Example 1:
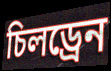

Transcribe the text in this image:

চিলড্ৰেন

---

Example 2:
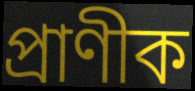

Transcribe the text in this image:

প্ৰাণীক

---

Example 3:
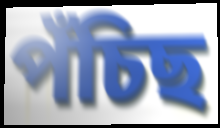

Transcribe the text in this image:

পঁচিছ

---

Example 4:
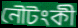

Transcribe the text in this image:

নৌটংকী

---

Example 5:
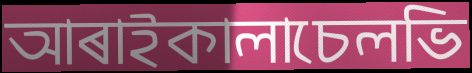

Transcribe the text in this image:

আৰাইকালাচেলভি